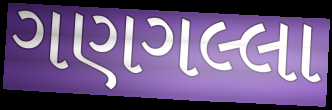
ગણગલ્લા